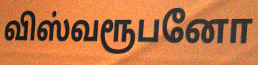
விஸ்வரூபனோ